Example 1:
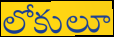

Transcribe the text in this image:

లోకులూ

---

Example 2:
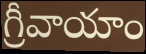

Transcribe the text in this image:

గ్రీవాయాం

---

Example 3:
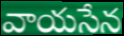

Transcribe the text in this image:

వాయసేన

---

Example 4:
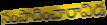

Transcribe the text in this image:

సంపాదించారావిడ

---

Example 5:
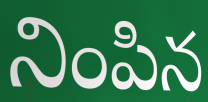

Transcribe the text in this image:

నింపిన